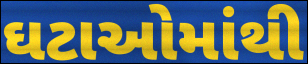
ઘટાઓમાંથી